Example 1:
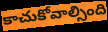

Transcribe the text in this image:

కాచుకోవాల్సింది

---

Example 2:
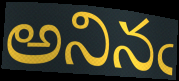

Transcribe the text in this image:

అనినఁ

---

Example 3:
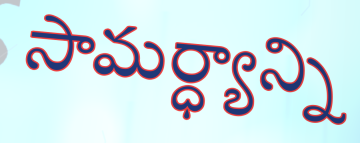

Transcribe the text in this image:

సామర్ధ్యాన్ని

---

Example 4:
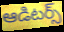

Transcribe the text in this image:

ఆడిటర్స్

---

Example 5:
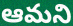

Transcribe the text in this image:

ఆమని